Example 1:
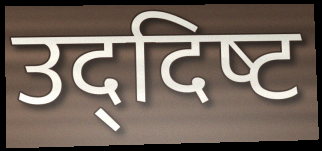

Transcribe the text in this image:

उद्‌दिष्‍ट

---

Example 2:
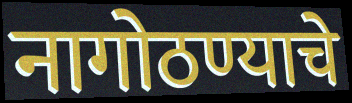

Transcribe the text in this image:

नागोठण्याचे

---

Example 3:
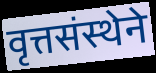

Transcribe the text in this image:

वृत्तसंस्थेने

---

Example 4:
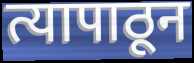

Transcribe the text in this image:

त्यापाठून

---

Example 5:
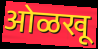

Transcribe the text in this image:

ओळखू